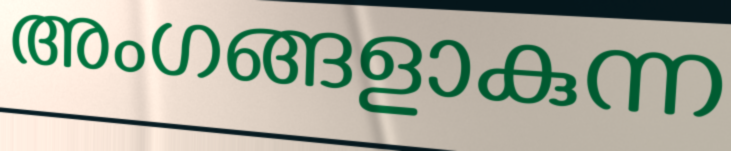
അംഗങ്ങളാകുന്ന